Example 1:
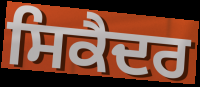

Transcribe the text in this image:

ਸਿਕੈਦਰ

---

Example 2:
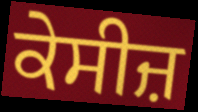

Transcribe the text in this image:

ਕੇਸੀਜ਼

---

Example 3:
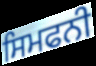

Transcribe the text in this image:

ਸਿਮਫਨੀ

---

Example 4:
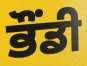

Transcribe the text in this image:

ਭੌਂਡੀ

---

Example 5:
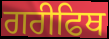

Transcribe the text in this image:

ਗਰੀਫਿਥ